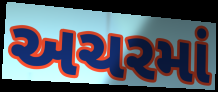
અચરમાં